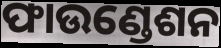
ଫାଉଣ୍ଡେଶନ